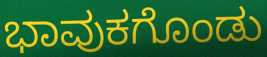
ಭಾವುಕಗೊಂಡು